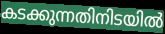
കടക്കുന്നതിനിടയിൽ